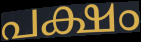
പക്ഷം